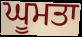
ਘੂਮਤਾ